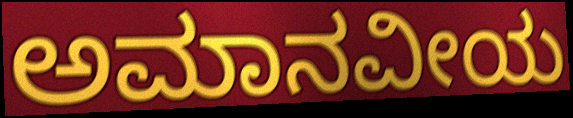
ಅಮಾನವೀಯ